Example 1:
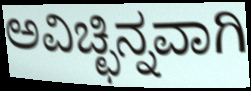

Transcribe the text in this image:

ಅವಿಚ್ಛಿನ್ನವಾಗಿ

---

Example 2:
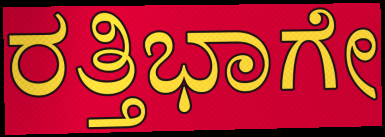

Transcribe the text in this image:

ರತ್ತಿಭಾಗೇ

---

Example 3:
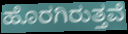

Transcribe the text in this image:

ಹೊರಗಿರುತ್ತವೆ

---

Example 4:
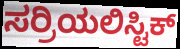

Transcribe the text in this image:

ಸರ್ರಿಯಲಿಸ್ಟಿಕ್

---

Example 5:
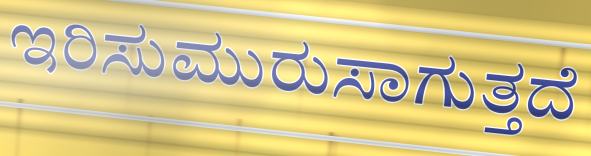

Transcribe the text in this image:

ಇರಿಸುಮುರುಸಾಗುತ್ತದೆ